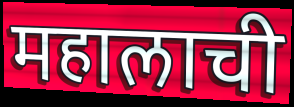
महालाची